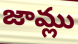
జామ్లు